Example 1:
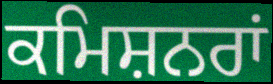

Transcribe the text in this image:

ਕਮਿਸ਼ਨਰਾਂ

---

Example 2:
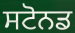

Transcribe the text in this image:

ਸਟੋਨਡ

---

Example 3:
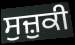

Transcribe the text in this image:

ਸੁਜ਼ੁਕੀ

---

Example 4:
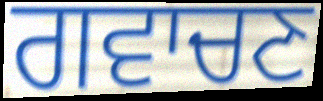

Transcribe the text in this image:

ਗਵਾਚਣ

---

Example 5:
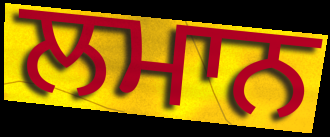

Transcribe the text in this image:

ਲਮਾਨ